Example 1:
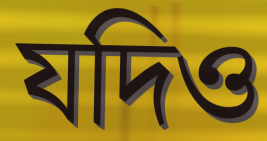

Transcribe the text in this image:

যদিও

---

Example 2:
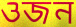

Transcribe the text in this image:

ওজন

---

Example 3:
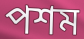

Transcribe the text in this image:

পশম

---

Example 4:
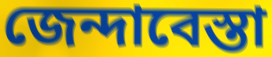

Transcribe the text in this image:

জেন্দাবেস্তা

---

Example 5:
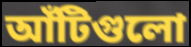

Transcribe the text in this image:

আঁটিগুলো